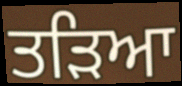
ਤੜਿਆ